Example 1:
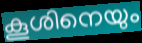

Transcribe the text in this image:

കൂശിനെയും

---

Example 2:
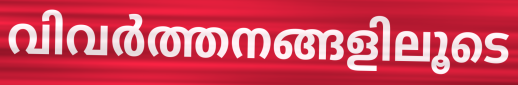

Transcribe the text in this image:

വിവർത്തനങ്ങളിലൂടെ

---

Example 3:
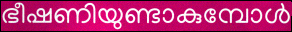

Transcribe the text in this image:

ഭീഷണിയുണ്ടാകുമ്പോൾ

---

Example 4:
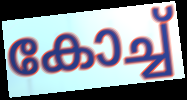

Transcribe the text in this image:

കോച്ച്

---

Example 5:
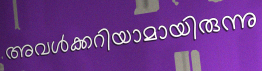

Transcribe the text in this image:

അവൾക്കറിയാമായിരുന്നു